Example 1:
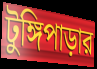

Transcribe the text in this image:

টুঙ্গিপাড়ার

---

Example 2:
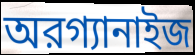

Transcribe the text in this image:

অরগ্যানাইজ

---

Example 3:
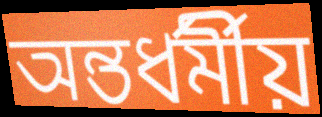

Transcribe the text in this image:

অন্তর্ধর্মীয়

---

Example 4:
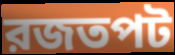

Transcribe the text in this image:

রজতপট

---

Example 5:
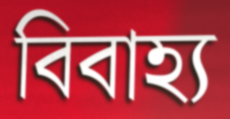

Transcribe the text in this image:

বিবাহ্য